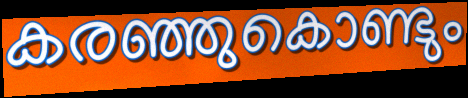
കരഞ്ഞുകൊണ്ടും